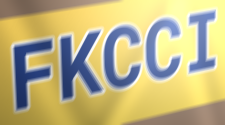
FKCCI